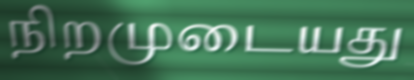
நிறமுடையது